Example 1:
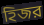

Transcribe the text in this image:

হিজর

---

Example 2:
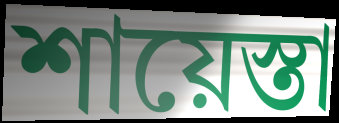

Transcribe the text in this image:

শায়েস্তা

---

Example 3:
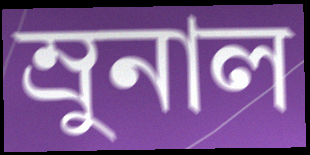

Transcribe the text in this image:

ম্রুনাল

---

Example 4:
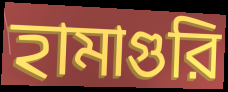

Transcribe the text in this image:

হামাগুরি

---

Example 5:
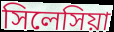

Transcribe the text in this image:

সিলেসিয়া